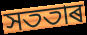
সততাৰ